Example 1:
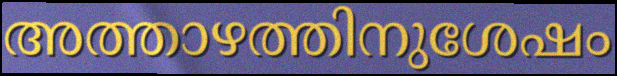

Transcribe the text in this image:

അത്താഴത്തിനുശേഷം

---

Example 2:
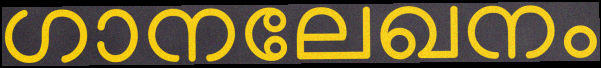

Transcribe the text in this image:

ഗാനലേഖനം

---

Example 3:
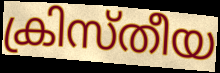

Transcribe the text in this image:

ക്രിസ്തീയ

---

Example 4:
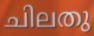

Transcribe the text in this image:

ചിലതു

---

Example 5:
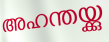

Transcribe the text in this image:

അഹന്തയ്ക്കു